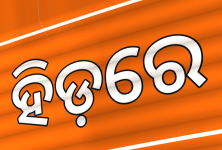
ହିଡ଼ରେ